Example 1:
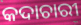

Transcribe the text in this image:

କଦାଚାରୀ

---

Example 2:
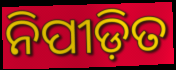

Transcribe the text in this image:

ନିପୀଡ଼ିତ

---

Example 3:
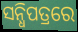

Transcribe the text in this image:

ସନ୍ଧିପତ୍ରରେ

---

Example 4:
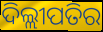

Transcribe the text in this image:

ଦିଲ୍ଲୀପତିର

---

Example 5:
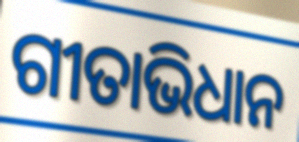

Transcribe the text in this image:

ଗୀତାଭିଧାନ